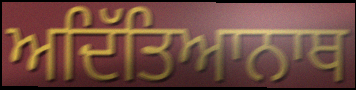
ਅਦਿੱਤਿਆਨਾਥ